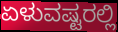
ಏಳುವಷ್ಟರಲ್ಲಿ